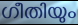
ഗീതിയും